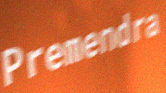
Premendra